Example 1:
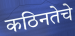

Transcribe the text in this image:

कठिनतेचे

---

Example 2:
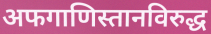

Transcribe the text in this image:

अफगाणिस्तानविरुद्ध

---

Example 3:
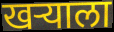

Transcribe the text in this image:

खर्‍याला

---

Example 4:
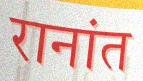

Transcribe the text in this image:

रानांत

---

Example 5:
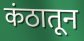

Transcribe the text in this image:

कंठातून